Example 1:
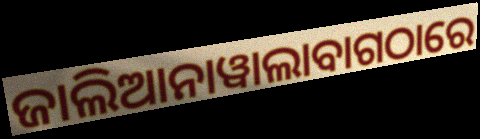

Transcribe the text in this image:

ଜାଲିଆନାୱାଲାବାଗଠାରେ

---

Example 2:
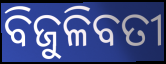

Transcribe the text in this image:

ବିଜୁଳିବତୀ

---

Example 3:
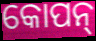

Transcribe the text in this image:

କୋପନ୍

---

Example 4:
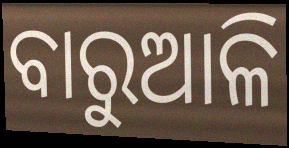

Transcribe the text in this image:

ବାରୁଆଳି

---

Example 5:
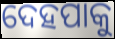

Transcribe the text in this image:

ଦେହପାକୁ